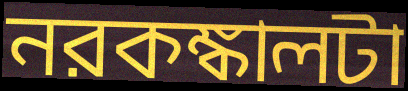
নরকঙ্কালটা